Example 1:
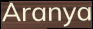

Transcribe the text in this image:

Aranya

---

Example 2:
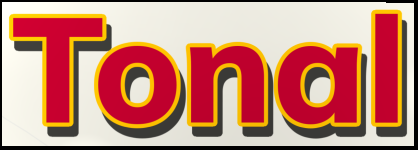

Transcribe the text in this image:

Tonal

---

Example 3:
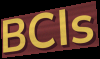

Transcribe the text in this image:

BCIs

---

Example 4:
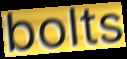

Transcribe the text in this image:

bolts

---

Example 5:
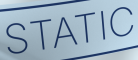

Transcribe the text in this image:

STATIC